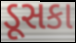
ડૂસકા